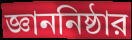
জ্ঞাননিষ্ঠার